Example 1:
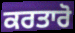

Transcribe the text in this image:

ਕਰਤਾਰੋ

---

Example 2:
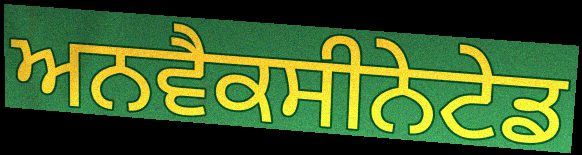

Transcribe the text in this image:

ਅਨਵੈਕਸੀਨੇਟੇਡ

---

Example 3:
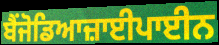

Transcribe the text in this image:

ਬੈਂਜੋਡਿਆਜ਼ਾਈਪਾਈਨ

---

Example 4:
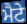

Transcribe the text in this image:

ਮੈਟੇ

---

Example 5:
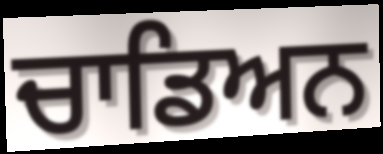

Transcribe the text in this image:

ਚਾਡਿਅਨ